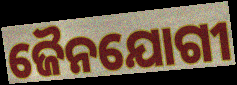
ଜୈନଯୋଗୀ